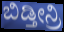
ಬಿಡ್ತೀನ್ರಿ